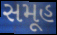
સમૂહ